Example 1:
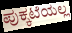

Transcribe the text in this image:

ಪುಕ್ಕಟೆಯಲ್ಲ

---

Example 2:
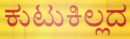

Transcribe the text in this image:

ಕುಟುಕಿಲ್ಲದ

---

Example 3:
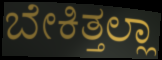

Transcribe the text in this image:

ಬೇಕಿತ್ತಲ್ಲಾ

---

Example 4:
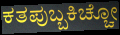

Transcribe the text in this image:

ಕತಪುಬ್ಬಕಿಚ್ಚೋ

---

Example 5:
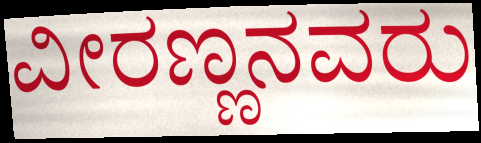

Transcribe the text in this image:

ವೀರಣ್ಣನವರು